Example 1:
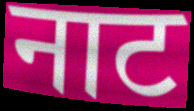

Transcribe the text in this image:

नाट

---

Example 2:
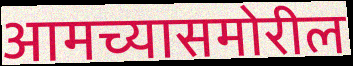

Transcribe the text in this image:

आमच्यासमोरील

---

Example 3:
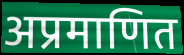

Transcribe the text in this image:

अप्रमाणित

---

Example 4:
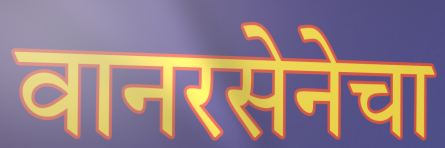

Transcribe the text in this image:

वानरसेनेचा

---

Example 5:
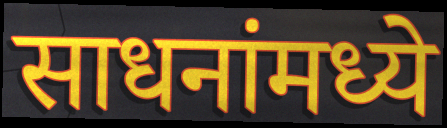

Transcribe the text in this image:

साधनांमध्ये